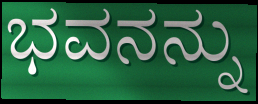
ಭವನನ್ನು